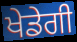
ਖੇਡੇਗੀ